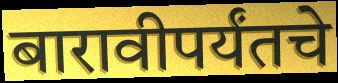
बारावीपर्यंतचे